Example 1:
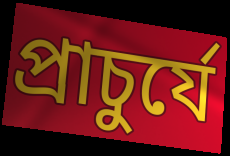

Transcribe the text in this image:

প্রাচুর্যে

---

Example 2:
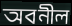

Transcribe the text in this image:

অবনীল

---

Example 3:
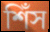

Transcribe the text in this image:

শিঁস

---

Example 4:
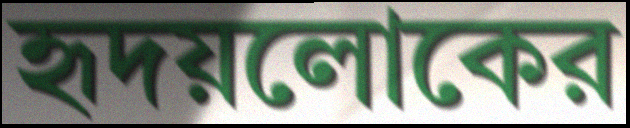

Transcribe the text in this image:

হৃদয়লোকের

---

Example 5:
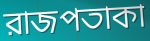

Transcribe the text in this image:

রাজপতাকা